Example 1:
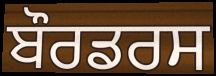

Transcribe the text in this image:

ਬੌਰਡਰਸ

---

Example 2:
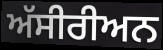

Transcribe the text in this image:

ਅੱਸੀਰੀਅਨ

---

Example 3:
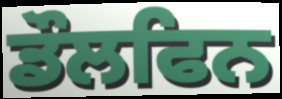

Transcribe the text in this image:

ਡੌਲਫਿਨ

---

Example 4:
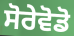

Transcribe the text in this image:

ਸੋਰੇਵੋਡੋ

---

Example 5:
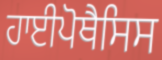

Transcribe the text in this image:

ਹਾਈਪੋਥੈਸਿਸ